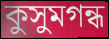
কুসুমগন্ধ